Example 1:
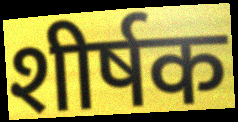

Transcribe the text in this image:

शीर्षक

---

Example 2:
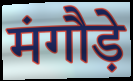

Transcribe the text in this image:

मंगौड़े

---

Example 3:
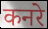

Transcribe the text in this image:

कनरे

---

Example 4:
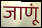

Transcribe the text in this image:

जाणूं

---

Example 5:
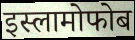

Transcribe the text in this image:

इस्लामोफोब